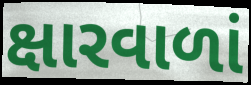
ક્ષારવાળાં